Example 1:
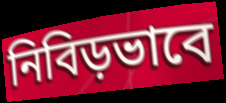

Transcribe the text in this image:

নিবিড়ভাবে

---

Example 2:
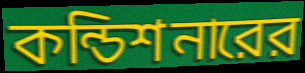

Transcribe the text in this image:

কন্ডিশনারের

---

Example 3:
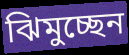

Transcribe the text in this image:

ঝিমুচ্ছেন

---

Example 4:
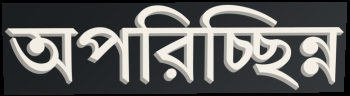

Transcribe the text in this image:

অপরিচ্ছিন্ন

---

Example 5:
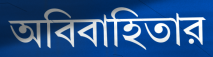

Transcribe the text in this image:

অবিবাহিতার